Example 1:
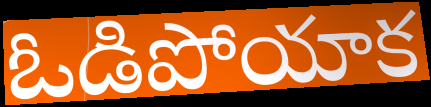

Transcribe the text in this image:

ఓడిపోయాక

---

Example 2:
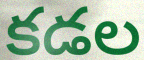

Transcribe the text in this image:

కడల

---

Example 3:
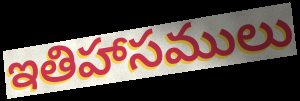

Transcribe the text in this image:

ఇతిహాసములు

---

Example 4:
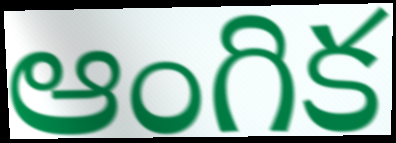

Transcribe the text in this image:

ఆంగిక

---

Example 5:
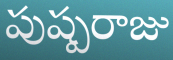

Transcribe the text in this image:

పుష్పరాజు